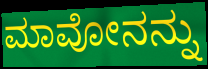
ಮಾವೋನನ್ನು